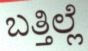
ಬತ್ತಿಲ್ಲೆ